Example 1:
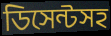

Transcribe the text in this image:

ডিসেন্টসহ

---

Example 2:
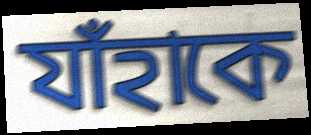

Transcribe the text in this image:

যাঁহাকে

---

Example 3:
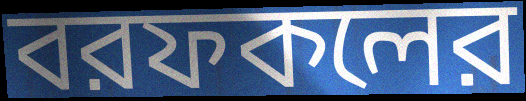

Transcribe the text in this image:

বরফকলের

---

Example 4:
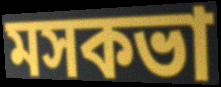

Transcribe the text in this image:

মসকভা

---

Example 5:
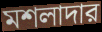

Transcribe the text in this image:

মশলাদার